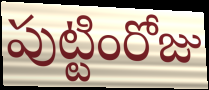
పుట్టింరోజు